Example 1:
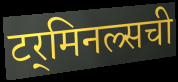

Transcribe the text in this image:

टर्मिनल्सची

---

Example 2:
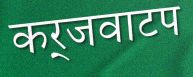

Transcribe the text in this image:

कर्जवाटप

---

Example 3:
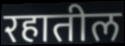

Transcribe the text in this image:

रहातील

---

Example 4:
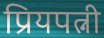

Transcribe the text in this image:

प्रियपत्नी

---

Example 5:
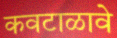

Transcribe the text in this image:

कवटाळावे